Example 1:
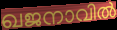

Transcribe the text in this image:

ഖജനാവിൽ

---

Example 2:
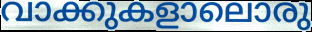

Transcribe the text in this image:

വാക്കുകളാലൊരു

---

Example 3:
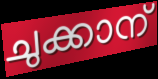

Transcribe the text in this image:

ചുക്കാന്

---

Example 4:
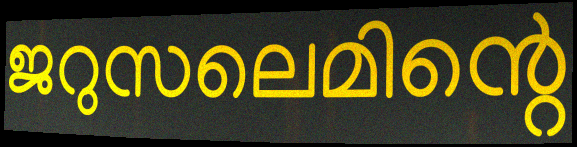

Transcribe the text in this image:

ജറുസലെമിന്റെ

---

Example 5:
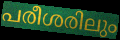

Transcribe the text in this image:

പരീശരിലും